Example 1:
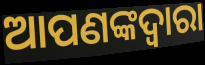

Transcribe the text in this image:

ଆପଣଙ୍କଦ୍ବାରା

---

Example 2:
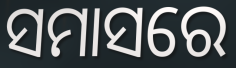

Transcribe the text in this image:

ସମାସରେ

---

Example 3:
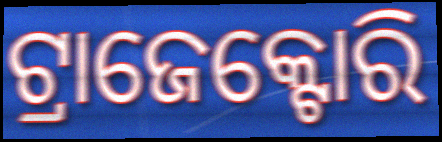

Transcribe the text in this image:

ଟ୍ରାଜେକ୍ଟୋରି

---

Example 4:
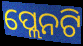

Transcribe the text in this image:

ପ୍ଲେନଟି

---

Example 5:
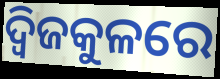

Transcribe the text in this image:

ଦ୍ୱିଜକୁଳରେ